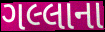
ગલ્લાના